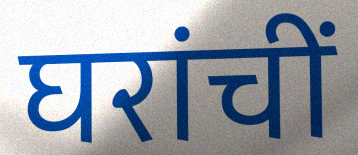
घरांचीं